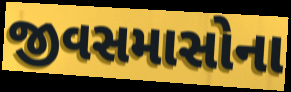
જીવસમાસોના